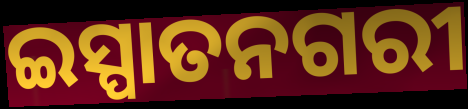
ଇସ୍ପାତନଗରୀ